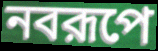
নবরূপে